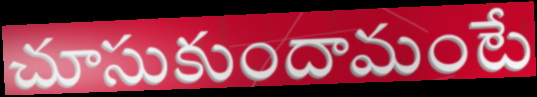
చూసుకుందామంటే